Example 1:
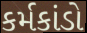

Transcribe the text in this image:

કર્મકાંડો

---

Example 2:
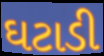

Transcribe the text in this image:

ઘટાડી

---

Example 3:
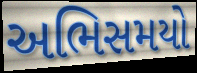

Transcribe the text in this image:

અભિસમયો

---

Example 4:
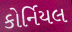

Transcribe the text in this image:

કોર્નિયલ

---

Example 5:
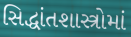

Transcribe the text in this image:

સિદ્ધાંતશાસ્ત્રોમાં